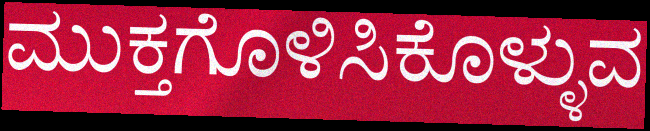
ಮುಕ್ತಗೊಳಿಸಿಕೊಳ್ಳುವ